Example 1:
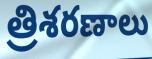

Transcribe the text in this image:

త్రిశరణాలు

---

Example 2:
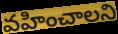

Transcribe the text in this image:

వహించాలని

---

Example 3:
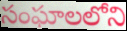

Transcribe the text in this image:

సంఘాలలోని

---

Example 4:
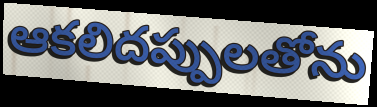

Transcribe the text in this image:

ఆకలిదప్పులతోను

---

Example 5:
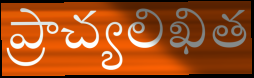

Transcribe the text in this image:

ప్రాచ్యలిఖిత